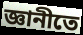
জ্ঞানীতে